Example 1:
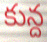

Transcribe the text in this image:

కున్ద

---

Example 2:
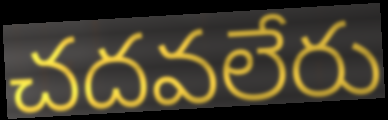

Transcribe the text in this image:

చదవలేరు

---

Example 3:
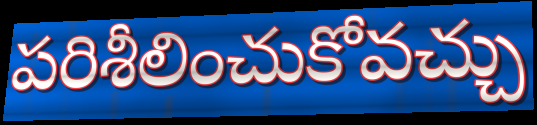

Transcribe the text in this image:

పరిశీలించుకోవచ్చు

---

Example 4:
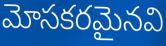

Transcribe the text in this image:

మోసకరమైనవి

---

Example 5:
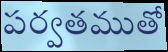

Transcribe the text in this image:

పర్వతముతో